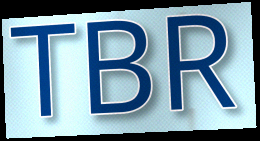
TBR